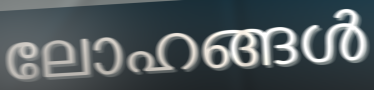
ലോഹങ്ങൾ